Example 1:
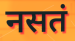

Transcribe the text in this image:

नसतं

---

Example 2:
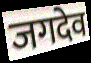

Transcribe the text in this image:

जगदेव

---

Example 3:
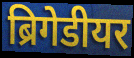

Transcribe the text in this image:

ब्रिगेडीयर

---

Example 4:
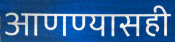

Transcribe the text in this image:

आणण्यासही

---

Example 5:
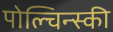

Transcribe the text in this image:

पोल्चिन्स्की